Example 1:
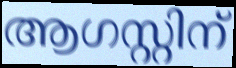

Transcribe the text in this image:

ആഗസ്റ്റിന്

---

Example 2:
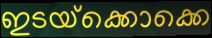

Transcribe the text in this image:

ഇടയ്‌ക്കൊക്കെ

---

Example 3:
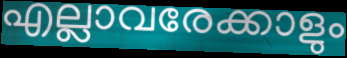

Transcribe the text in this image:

എല്ലാവരേക്കാളും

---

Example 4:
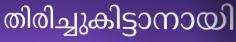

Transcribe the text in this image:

തിരിച്ചുകിട്ടാനായി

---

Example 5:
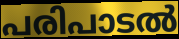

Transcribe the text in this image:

പരിപാടൽ